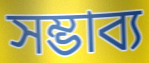
সম্ভাব্য